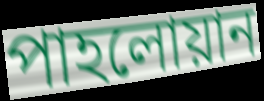
পাহলোয়ান